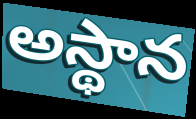
అస్థాన